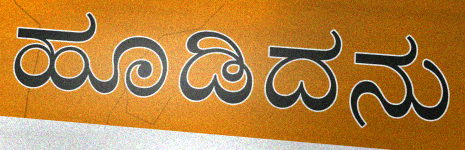
ಹೂಡಿದನು